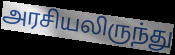
அரசியலிருந்து